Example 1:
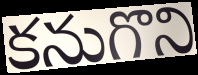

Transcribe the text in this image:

కనుగొని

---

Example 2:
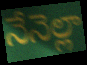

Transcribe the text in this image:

నేనెల్లా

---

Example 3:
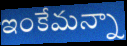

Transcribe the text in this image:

ఇంకేమన్నా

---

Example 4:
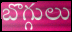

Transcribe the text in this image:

బొగ్గులు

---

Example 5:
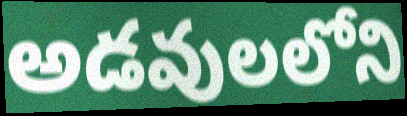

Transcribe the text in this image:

అడవులలోని